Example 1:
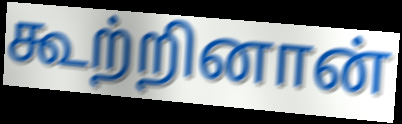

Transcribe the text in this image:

கூற்றினான்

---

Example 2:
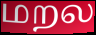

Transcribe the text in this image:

மறல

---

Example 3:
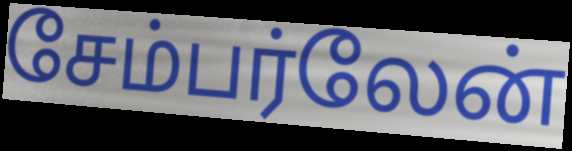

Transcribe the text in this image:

சேம்பர்லேன்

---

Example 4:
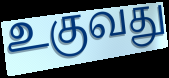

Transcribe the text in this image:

உகுவது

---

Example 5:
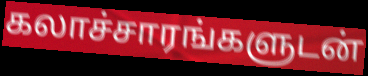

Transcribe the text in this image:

கலாச்சாரங்களுடன்